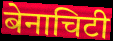
बेनाचिटी